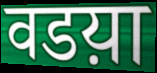
वडय़ा